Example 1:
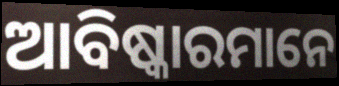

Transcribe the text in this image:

ଆବିଷ୍କାରମାନେ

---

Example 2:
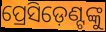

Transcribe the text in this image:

ପ୍ରେସିଡ଼େଣ୍ଟଙ୍କୁ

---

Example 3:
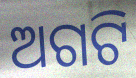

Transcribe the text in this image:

ଅଗଟି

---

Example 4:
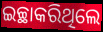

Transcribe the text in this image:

ଇଚ୍ଛାକରିଥିଲେ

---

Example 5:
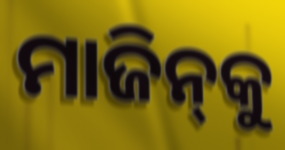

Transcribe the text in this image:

ମାଜିନ୍‌କୁ